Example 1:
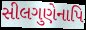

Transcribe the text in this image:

સીલગુણેનાપિ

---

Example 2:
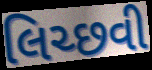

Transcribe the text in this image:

લિચ્છવી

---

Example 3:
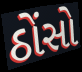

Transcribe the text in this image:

ઠોંસો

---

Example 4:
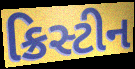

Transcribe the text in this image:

ક્રિસ્ટીન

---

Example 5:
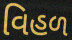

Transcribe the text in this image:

વિહળ